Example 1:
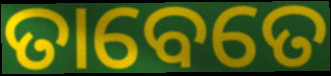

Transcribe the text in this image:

ତାବେତେ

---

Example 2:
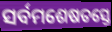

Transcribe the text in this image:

ସର୍ବମଶେଷତସ୍ତେ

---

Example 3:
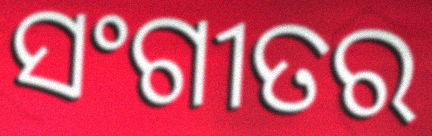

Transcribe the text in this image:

ସଂଗୀତର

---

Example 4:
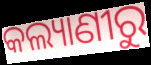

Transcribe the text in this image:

କଲ୍ୟାଣୀରୁ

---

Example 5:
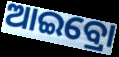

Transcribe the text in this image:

ଆଇବ୍ରୋ